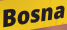
Bosna